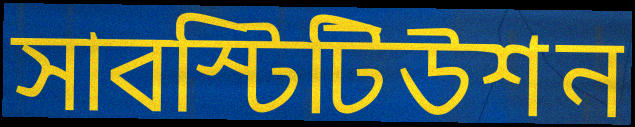
সাবস্টিটিউশন